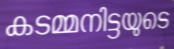
കടമ്മനിട്ടയുടെ